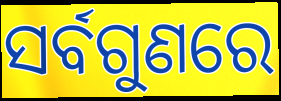
ସର୍ବଗୁଣରେ